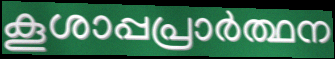
കൂശാപ്പപ്രാർത്ഥന